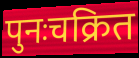
पुनःचक्रित